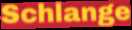
Schlange